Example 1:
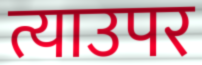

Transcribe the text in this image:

त्याउपर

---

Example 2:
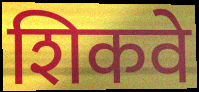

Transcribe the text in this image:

शिकवे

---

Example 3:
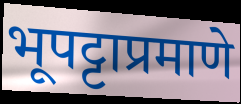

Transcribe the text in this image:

भूपट्टाप्रमाणे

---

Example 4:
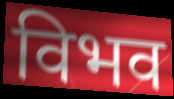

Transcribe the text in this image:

विभव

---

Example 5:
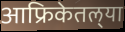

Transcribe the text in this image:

आफ्रिकेतल्या